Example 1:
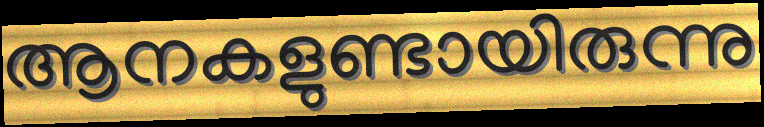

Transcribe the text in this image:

ആനകളുണ്ടായിരുന്നു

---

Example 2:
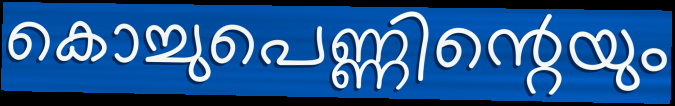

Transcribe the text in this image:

കൊച്ചുപെണ്ണിന്റെയും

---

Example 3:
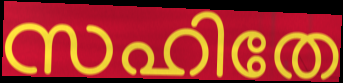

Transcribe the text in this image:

സഹിതേ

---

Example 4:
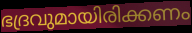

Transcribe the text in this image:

ഭദ്രവുമായിരിക്കണം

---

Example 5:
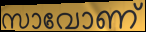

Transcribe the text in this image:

സാവോണ്